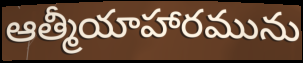
ఆత్మీయాహారమును